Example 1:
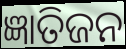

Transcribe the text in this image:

ଜ୍ଞାତିଜନ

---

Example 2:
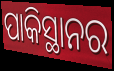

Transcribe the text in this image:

ପାକିସ୍ଥାନର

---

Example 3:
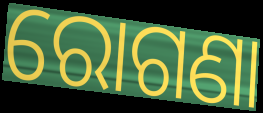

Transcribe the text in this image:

ରୋଗଣା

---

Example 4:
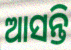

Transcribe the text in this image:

ଆସନ୍ତି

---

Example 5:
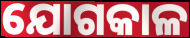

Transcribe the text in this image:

ଯୋଗକାଳ